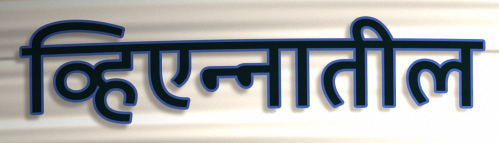
व्हिएन्नातील